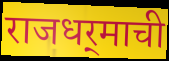
राजधर्माची